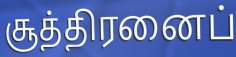
சூத்திரனைப்